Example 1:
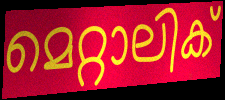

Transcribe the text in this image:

മെറ്റാലിക്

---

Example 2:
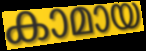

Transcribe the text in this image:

കാമായ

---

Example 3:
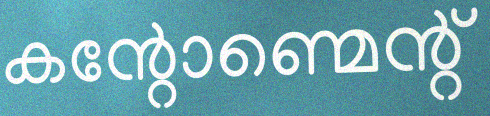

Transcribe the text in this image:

കന്റോണ്മെന്റ്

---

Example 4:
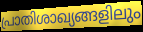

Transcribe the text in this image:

പ്രാതിശാഖ്യങ്ങളിലും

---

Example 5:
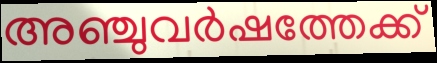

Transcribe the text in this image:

അഞ്ചുവർഷത്തേക്ക്